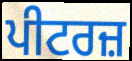
ਪੀਟਰਜ਼